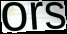
ors